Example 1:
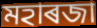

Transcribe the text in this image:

মহাৰজা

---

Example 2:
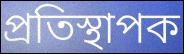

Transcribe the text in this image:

প্ৰতিস্থাপক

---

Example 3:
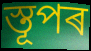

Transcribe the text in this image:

স্তূপৰ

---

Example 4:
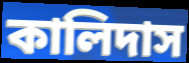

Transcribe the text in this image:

কালিদাস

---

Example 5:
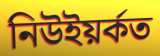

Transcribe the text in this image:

নিউইয়ৰ্কত